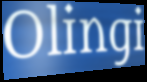
Olingi